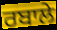
ਰਬਾਲੇ